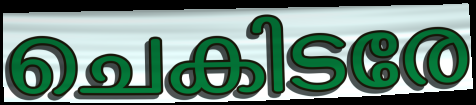
ചെകിടരേ